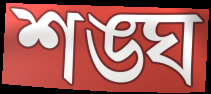
শঙ্ঘ